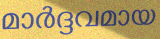
മാർദ്ദവമായ